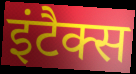
इंटैक्स